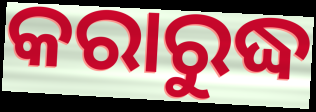
କରାରୁଦ୍ଧ